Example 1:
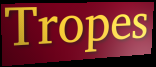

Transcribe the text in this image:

Tropes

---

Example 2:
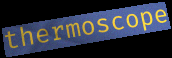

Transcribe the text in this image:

thermoscope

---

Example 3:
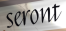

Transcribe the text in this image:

seront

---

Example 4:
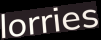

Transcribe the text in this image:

lorries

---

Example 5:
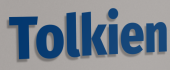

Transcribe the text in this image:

Tolkien